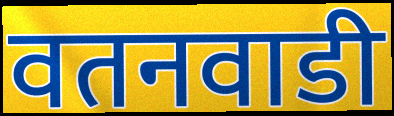
वतनवाडी